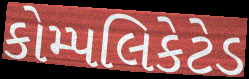
કોમ્પલિકેટેડ